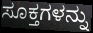
ಸೂಕ್ತಗಳನ್ನು